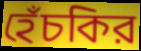
হেঁচকির